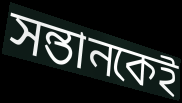
সন্তানকেই